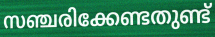
സഞ്ചരിക്കേണ്ടതുണ്ട്